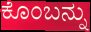
ಕೊಂಬನ್ನು